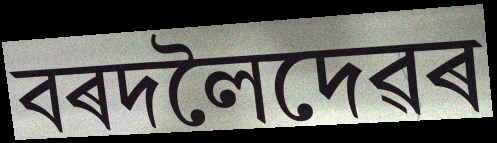
বৰদলৈদেৱৰ